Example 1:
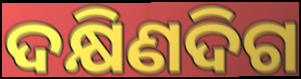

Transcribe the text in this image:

ଦକ୍ଷିଣଦିଗ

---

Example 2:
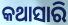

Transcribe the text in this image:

କଥାସାରି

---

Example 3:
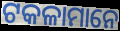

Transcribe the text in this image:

ଟକଳାମାନେ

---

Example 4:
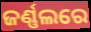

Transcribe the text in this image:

ଜର୍ଣ୍ଣଲରେ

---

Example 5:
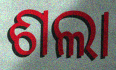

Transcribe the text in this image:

ଶଲା